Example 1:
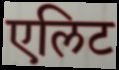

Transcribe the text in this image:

एलिट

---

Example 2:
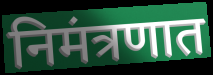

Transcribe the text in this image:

निमंत्रणात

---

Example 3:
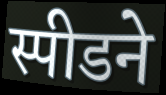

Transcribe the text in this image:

स्पीडने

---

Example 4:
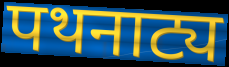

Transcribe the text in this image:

पथनाट्य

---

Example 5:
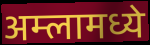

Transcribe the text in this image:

अम्लामध्ये